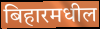
बिहारमधील